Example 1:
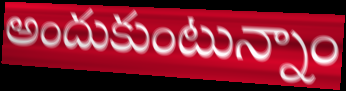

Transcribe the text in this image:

అందుకుంటున్నాం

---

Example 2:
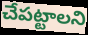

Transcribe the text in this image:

చేపట్టాలని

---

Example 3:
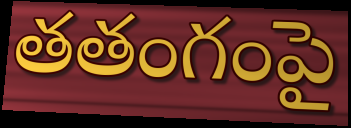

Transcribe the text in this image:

తతంగంపై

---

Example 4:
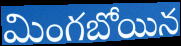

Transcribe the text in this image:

మింగబోయిన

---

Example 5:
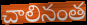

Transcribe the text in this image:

చాలినంత